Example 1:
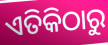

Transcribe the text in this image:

ଏତିକିଠାରୁ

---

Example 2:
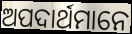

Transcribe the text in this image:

ଅପଦାର୍ଥମାନେ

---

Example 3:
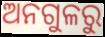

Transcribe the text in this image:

ଅନଗୁଳରୁ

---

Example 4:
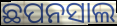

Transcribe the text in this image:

ଛପନସାଲ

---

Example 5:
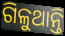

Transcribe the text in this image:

ଗିଳୁଥାନ୍ତି